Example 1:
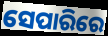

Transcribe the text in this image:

ସେପାରିରେ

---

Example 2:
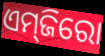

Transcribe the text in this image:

ଏମ୍‌ଜିରୋ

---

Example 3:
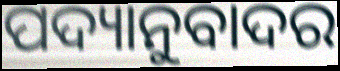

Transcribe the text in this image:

ପଦ୍ୟାନୁବାଦର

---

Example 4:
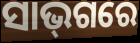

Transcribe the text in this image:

ସାଭ୍‌ଗରେ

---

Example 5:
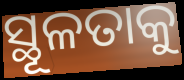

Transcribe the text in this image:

ସ୍ଥୂଳତାକୁ